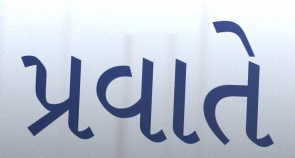
પ્રવાતે